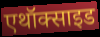
एथॉक्साइड